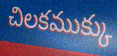
చిలకముక్కు